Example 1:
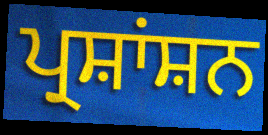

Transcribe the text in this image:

ਪ੍ਰਸ਼ਾਂਸ਼ਨ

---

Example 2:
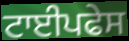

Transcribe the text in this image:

ਟਾਈਪਫੇਸ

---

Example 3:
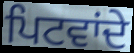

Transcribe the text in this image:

ਪਿਟਵਾਂਦੇ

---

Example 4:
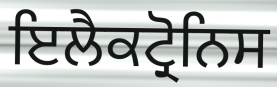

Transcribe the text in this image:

ਇਲੈਕਟ੍ਰੋਨਿਸ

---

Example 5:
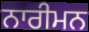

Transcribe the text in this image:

ਨਾਰੀਮਨ